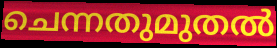
ചെന്നതുമുതൽ